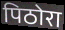
पिठोरा